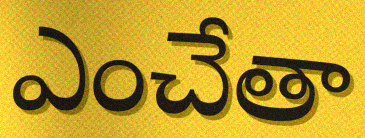
ఎంచేతా